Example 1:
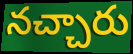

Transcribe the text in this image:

నచ్చారు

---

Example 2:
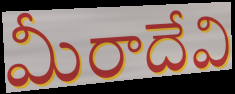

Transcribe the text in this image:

మీరాదేవి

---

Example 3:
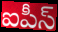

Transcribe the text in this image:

ఐపీస్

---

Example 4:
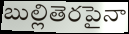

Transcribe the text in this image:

బుల్లితెరపైనా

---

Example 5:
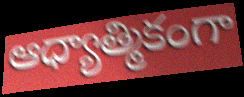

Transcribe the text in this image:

ఆధ్యాత్మికంగా